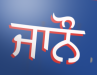
ਜਾਨੌ